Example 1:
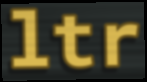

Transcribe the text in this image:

ltr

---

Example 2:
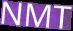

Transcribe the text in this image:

NMT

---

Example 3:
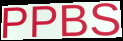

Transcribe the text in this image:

PPBS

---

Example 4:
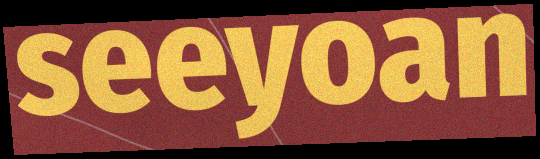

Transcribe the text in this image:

seeyoan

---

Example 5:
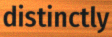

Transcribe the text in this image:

distinctly